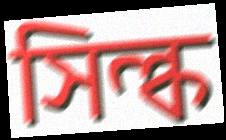
সিল্ক